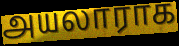
அயலாராக